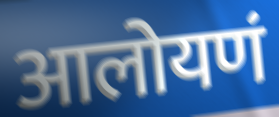
आलोयणं